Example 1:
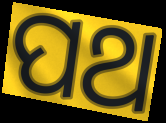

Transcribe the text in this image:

ପଥ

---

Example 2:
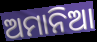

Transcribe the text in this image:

ଅମାନିଆ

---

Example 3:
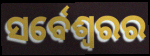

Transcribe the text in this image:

ସର୍ବେଶ୍ୱରର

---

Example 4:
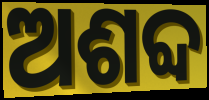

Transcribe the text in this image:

ଅଶବ୍ଦ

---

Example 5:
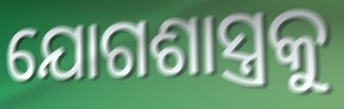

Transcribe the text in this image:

ଯୋଗଶାସ୍ତ୍ରକୁ